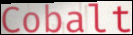
Cobalt